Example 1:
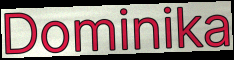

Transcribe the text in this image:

Dominika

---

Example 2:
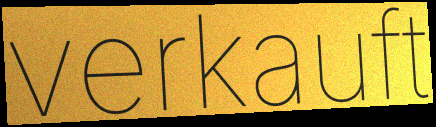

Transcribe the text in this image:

verkauft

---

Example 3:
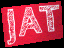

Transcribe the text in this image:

JAT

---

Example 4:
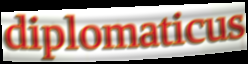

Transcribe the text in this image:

diplomaticus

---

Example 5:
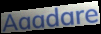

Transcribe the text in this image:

Aaadare